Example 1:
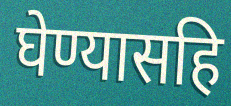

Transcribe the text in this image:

घेण्यासहि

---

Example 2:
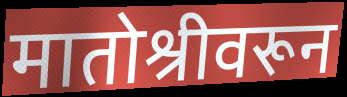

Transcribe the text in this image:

मातोश्रीवरून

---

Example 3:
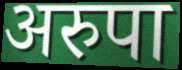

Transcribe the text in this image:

अरुपा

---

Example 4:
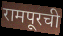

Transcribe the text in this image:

रामपूरची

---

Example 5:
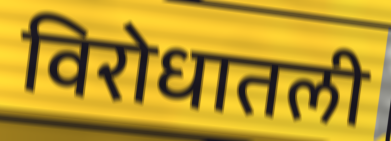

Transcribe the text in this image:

विरोधातली